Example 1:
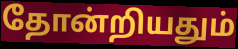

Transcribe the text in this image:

தோன்றியதும்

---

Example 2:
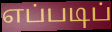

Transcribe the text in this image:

எப்படிப்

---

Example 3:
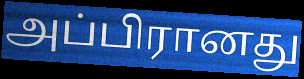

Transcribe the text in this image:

அப்பிரானது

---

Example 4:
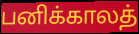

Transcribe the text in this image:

பனிக்காலத்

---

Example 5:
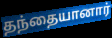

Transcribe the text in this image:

தந்தையானார்